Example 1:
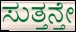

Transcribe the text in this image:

ಸುತ್ತನ್ತೇ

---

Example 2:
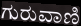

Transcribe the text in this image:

ಗುರುವಾಣಿ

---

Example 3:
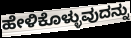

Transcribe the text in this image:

ಹೇಳಿಕೊಳ್ಳುವುದನ್ನು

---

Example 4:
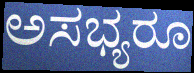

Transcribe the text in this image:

ಅಸಭ್ಯರೂ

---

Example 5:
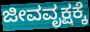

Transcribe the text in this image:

ಜೀವವೃಕ್ಷಕ್ಕೆ